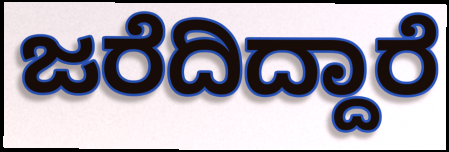
ಜರೆದಿದ್ದಾರೆ